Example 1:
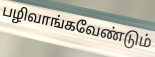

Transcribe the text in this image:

பழிவாங்கவேண்டும்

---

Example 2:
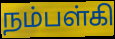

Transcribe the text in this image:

நம்பள்கி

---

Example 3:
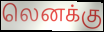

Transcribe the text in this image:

லெனக்கு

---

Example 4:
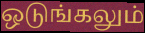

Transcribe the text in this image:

ஒடுங்கலும்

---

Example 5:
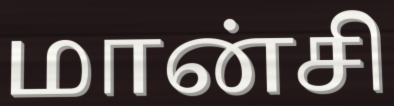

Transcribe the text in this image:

மான்சி